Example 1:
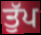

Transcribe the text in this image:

ਤੁੱਪ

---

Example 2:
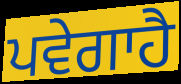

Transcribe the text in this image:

ਪਵੇਗਾਹੈ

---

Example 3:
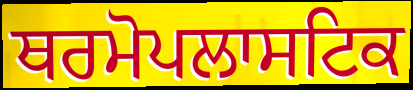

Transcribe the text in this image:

ਥਰਮੋਪਲਾਸਟਿਕ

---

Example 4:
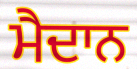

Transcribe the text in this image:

ਮੈਦਾਨ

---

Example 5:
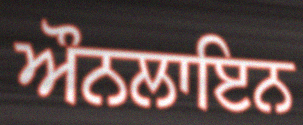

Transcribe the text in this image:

ਔਨਲਾਇਨ